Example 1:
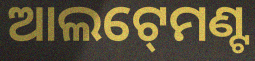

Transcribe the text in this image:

ଆଲଟ୍‍ମେଣ୍ଟ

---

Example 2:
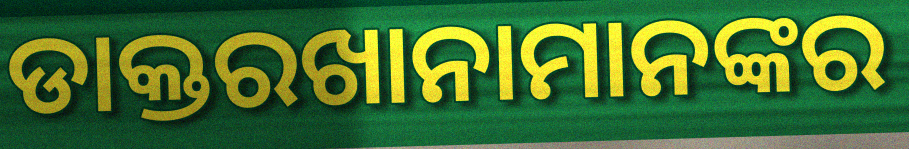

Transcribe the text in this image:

ଡାକ୍ତରଖାନାମାନଙ୍କର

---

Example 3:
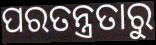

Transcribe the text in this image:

ପରତନ୍ତ୍ରତାରୁ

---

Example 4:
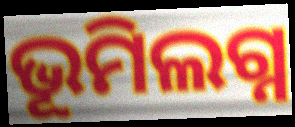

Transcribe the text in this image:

ଭୂମିଲଗ୍ନ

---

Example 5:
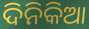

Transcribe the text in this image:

ଦିନିକିଆ